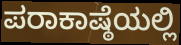
ಪರಾಕಾಷ್ಠೆಯಲ್ಲಿ